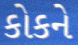
કોકને